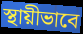
স্থায়ীভাবে